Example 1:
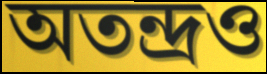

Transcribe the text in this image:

অতন্দ্রও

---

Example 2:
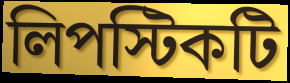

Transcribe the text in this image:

লিপস্টিকটি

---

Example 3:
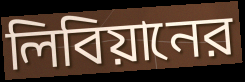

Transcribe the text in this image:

লিবিয়ানের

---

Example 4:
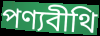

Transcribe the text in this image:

পণ্যবীথি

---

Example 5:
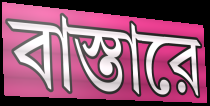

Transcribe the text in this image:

বাস্তারে